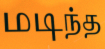
மடிந்த